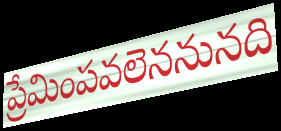
ప్రేమింపవలెననునది